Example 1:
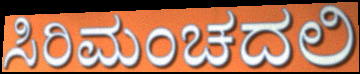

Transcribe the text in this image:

ಸಿರಿಮಂಚದಲಿ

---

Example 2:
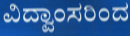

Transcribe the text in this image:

ವಿದ್ವಾಂಸರಿಂದ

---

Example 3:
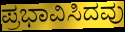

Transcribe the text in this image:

ಪ್ರಭಾವಿಸಿದವು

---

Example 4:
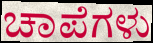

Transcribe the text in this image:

ಚಾಪೆಗಳು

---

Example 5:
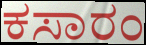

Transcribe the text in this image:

ಕಸಾರಂ